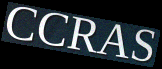
CCRAS